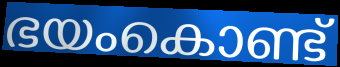
ഭയംകൊണ്ട്